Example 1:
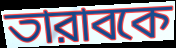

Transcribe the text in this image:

তারাবকে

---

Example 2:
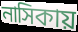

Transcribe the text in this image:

নাসিকায়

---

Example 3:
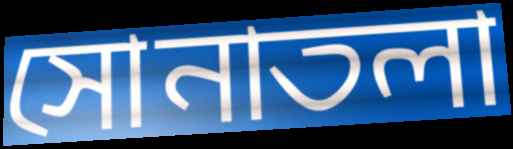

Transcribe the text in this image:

সোনাতলা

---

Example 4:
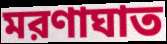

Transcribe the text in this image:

মরণাঘাত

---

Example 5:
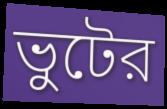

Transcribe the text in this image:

ভুটের